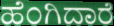
ಹೆಂಗಿದಾರೆ